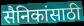
सैनिकांसाठी